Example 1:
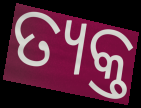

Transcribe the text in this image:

ତ୍ୟକ୍ତ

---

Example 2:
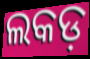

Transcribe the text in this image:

ଲକଡ଼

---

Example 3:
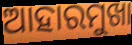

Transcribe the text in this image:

ଆହାରମୁଖା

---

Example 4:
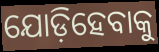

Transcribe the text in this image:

ଯୋଡ଼ିହେବାକୁ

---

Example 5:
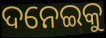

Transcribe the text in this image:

ଦନେଇକୁ